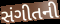
સંગીતની